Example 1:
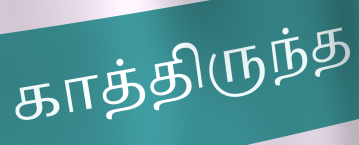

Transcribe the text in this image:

காத்திருந்த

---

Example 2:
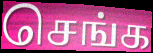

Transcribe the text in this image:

செங்க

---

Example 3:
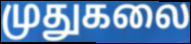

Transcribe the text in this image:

முதுகலை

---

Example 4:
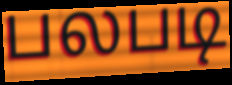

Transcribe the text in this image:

பலபடி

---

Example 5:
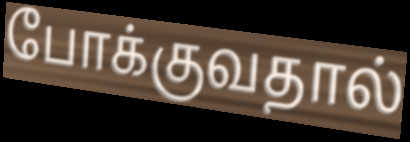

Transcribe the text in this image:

போக்குவதால்